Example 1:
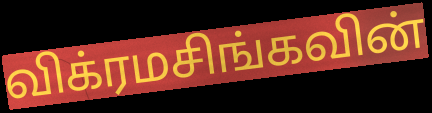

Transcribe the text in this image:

விக்ரமசிங்கவின்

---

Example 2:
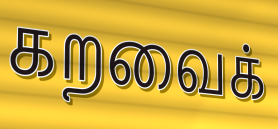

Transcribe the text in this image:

கறவைக்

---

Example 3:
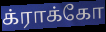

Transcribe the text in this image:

க்ராக்கோ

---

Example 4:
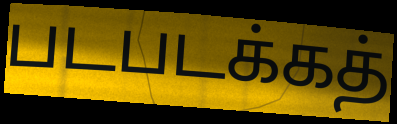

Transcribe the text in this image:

படபடக்கத்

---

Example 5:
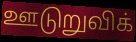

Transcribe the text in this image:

ஊடுறுவிக்